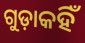
ଗୁଡ଼ାକହିଁ